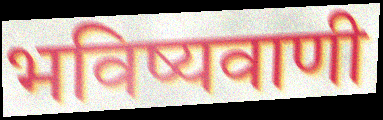
भविष्यवाणी